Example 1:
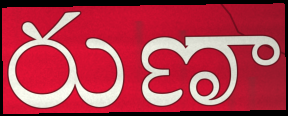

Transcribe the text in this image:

రుణా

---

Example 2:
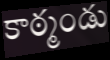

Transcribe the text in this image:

కాఠ్మండు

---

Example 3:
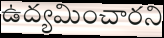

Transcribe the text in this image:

ఉద్యమించారని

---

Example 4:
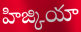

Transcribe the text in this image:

హిజ్కియా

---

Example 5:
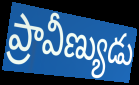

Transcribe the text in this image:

ప్రావీణ్యుడు